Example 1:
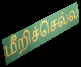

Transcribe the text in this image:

மீறிச்செல்ல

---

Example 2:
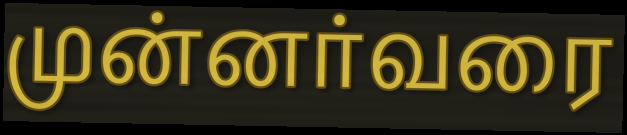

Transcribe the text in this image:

முன்னர்வரை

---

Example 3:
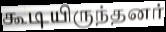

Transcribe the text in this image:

கூடியிருந்தனர்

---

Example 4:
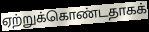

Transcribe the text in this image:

ஏற்றுக்கொண்டதாகக்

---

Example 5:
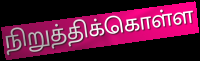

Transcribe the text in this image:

நிறுத்திக்கொள்ள